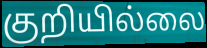
குறியில்லை